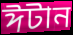
ঈটান